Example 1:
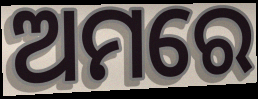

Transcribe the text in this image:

ଅମରେ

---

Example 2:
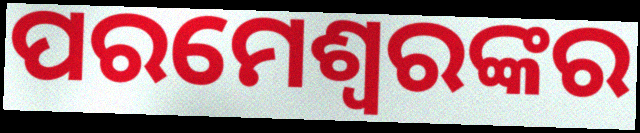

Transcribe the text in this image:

ପରମେଶ୍ଵରଙ୍କର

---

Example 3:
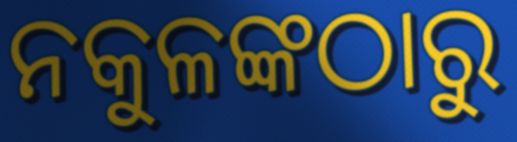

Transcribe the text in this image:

ନକୁଳଙ୍କଠାରୁ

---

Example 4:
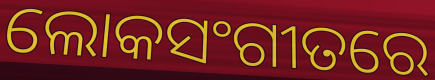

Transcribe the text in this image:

ଲୋକସଂଗୀତରେ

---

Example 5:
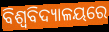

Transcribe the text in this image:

ବିଶ୍ୱବିଦ୍ୟାଳୟରେ